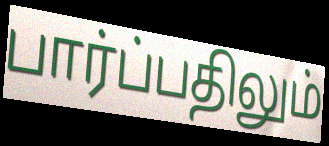
பார்ப்பதிலும்